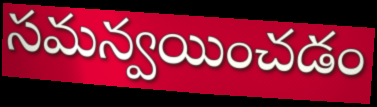
సమన్వయించడం